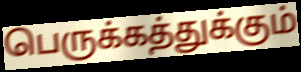
பெருக்கத்துக்கும்